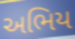
અભિય